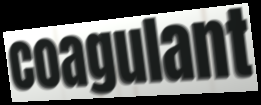
coagulant